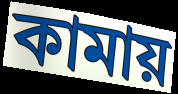
কামায়